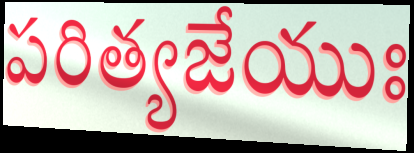
పరిత్యజేయుః